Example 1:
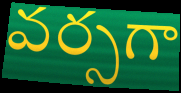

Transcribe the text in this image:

వర్సగా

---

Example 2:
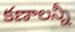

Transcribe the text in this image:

కణాలన్నీ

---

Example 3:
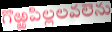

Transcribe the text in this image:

గొఱ్ఱపిల్లలవలెను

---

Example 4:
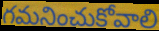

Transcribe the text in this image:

గమనించుకోవాలి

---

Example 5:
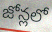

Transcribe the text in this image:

జోన్లలో